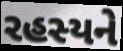
રહસ્યને